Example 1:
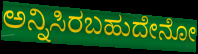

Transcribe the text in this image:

ಅನ್ನಿಸಿರಬಹುದೇನೋ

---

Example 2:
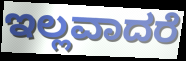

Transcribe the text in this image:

ಇಲ್ಲವಾದರೆ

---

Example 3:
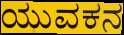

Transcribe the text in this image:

ಯುವಕನ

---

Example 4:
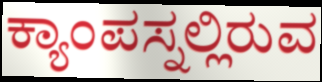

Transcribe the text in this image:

ಕ್ಯಾಂಪಸ್ನಲ್ಲಿರುವ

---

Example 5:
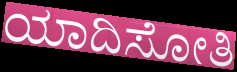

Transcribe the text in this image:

ಯಾದಿಸೋತಿ